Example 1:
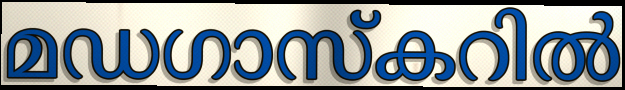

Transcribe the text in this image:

മഡഗാസ്കറിൽ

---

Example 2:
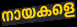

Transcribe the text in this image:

നായകളെ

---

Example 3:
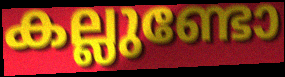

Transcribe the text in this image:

കല്ലുണ്ടോ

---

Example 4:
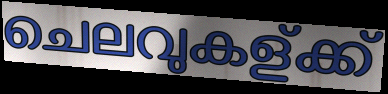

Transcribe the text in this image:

ചെലവുകള്ക്ക്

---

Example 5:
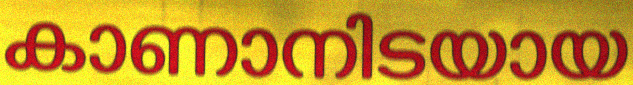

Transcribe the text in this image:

കാണാനിടയായ